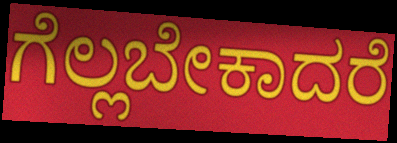
ಗೆಲ್ಲಬೇಕಾದರೆ